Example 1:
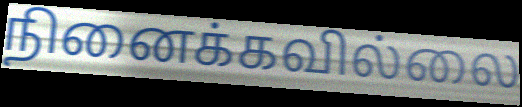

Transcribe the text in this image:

நினைக்கவில்லை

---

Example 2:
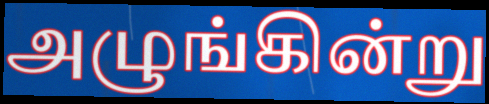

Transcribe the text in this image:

அழுங்கின்று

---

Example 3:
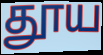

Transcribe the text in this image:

தூய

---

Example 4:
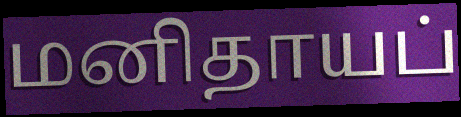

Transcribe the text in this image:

மனிதாயப்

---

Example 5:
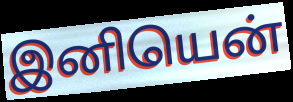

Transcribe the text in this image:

இனியென்